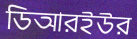
ডিআরইউর